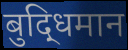
बुद्धिमान